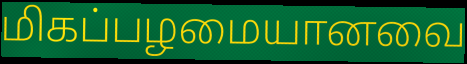
மிகப்பழமையானவை